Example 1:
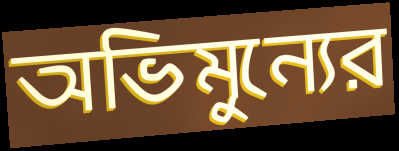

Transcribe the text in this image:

অভিমুন্যের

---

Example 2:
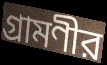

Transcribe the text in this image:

গ্রামণীর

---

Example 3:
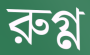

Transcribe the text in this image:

রুগ্ণ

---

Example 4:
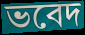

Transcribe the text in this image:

ভবেদ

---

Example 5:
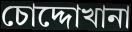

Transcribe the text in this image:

চোদ্দোখানা